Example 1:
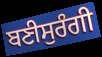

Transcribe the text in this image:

ਬਣੀਸੁਰੰਗੀ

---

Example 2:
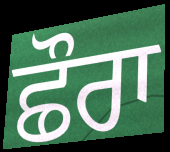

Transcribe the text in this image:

ਛੌਰਾ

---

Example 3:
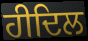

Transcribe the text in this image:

ਹੀਦਿਲ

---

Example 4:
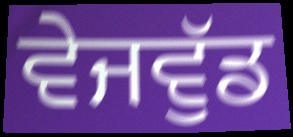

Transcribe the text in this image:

ਵੇਜਵੁੱਡ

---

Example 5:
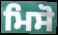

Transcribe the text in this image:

ਮਿਸੋ